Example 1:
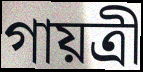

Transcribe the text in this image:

গায়ত্ৰী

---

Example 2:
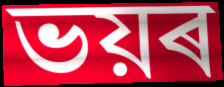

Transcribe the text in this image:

ভয়ৰ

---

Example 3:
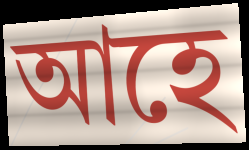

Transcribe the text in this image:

আহে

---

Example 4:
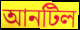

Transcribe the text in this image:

আনটিল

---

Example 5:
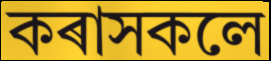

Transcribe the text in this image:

কৰাসকলে